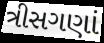
ત્રીસગણાં